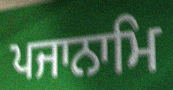
ਪਜਾਨਾਮਿ